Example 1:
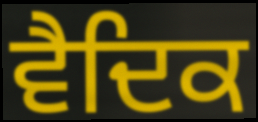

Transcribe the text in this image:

ਵੈਦਿਕ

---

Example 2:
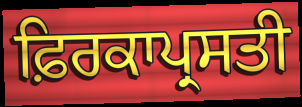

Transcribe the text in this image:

ਫ਼ਿਰਕਾਪ੍ਰਸਤੀ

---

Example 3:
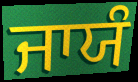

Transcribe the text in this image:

ਜਾਯੰ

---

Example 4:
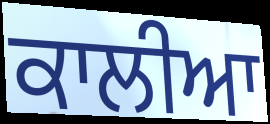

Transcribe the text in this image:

ਕਾਲੀਆ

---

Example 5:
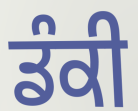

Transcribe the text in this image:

ਡੰਕੀ